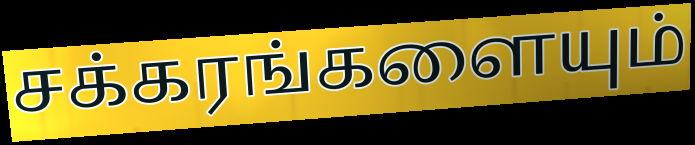
சக்கரங்களையும்